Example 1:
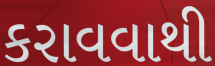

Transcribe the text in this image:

કરાવવાથી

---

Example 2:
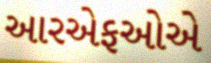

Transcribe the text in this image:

આરએફઓએ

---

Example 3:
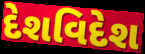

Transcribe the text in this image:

દેશવિદેશ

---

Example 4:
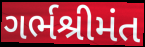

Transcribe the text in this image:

ગર્ભશ્રીમંત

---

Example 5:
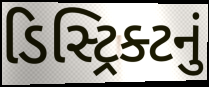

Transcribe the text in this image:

ડિસ્ટ્રિક્ટનું